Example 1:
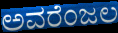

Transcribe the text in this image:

ಅವರೆಂಜಲ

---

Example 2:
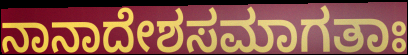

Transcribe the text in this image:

ನಾನಾದೇಶಸಮಾಗತಾಃ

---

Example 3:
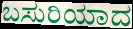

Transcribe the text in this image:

ಬಸುರಿಯಾದ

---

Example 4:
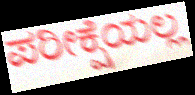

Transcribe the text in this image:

ಪರೀಕ್ಷೆಯಲ್ಲ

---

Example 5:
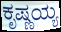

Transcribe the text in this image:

ಕೃಷ್ಣಯ್ಯ